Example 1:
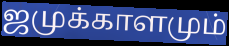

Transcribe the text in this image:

ஜமுக்காளமும்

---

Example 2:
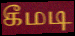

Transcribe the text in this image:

கீமடி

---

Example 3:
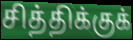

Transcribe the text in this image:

சித்திக்குக்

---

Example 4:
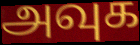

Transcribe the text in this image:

அவுக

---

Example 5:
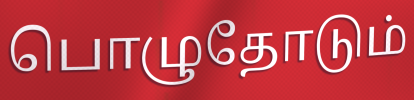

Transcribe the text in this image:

பொழுதோடும்